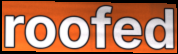
roofed